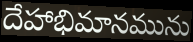
దేహాభిమానమును